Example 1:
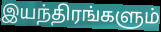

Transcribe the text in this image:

இயந்திரங்களும்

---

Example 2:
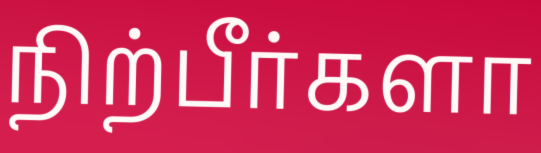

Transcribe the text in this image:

நிற்பீர்களா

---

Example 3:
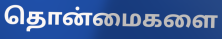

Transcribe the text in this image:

தொன்மைகளை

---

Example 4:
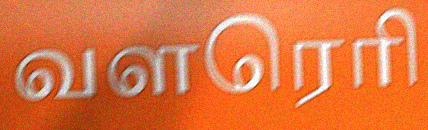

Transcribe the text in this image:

வளரெரி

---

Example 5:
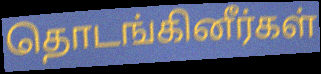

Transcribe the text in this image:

தொடங்கினீர்கள்